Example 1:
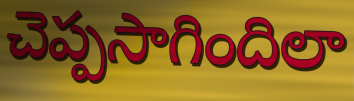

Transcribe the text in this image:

చెప్పసాగిందిలా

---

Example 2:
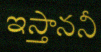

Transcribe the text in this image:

ఇస్తాననీ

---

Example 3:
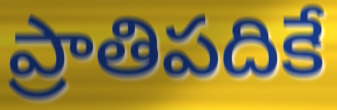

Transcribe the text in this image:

ప్రాతిపదికే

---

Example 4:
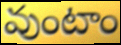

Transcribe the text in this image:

వుంటాం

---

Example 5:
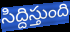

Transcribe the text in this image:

సిద్దిస్తుంది